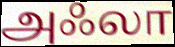
அஃலா